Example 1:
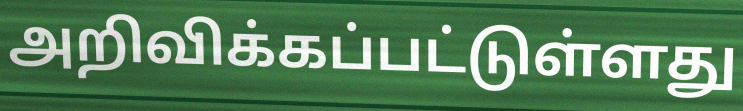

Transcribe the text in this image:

அறிவிக்கப்பட்டுள்ளது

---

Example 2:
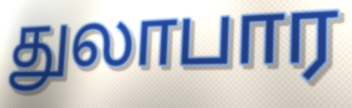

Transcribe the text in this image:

துலாபார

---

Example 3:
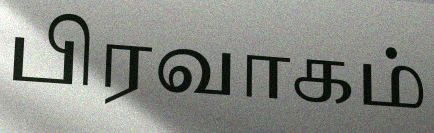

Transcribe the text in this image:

பிரவாகம்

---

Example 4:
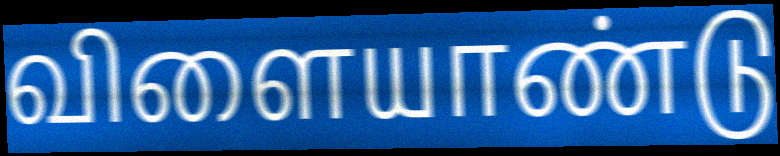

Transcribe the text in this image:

விளையாண்டு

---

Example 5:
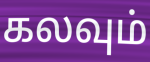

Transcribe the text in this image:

கலவும்